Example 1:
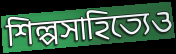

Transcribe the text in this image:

শিল্পসাহিত্যেও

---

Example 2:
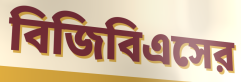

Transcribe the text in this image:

বিজিবিএসের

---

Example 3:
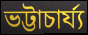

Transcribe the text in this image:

ভট্টাচার্য্য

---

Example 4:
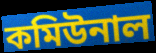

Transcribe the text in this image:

কমিউনাল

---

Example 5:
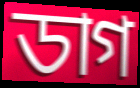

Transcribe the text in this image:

ডাগ